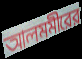
আলমমীরের